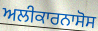
ਅਲੀਕਾਰਨਾਸੋਸ